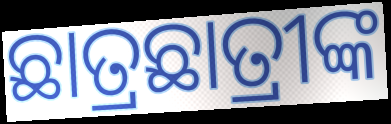
ଛାତ୍ରଛାତ୍ରୀଙ୍କ